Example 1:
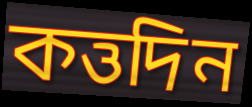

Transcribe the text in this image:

কত্তদিন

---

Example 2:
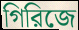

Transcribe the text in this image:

গিরিজে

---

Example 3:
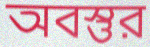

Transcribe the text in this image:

অবস্তুর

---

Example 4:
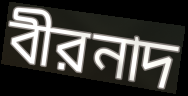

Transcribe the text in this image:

বীরনাদ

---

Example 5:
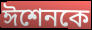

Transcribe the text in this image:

ঈশেনকে